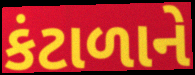
કંટાળાને